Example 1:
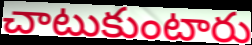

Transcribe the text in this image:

చాటుకుంటారు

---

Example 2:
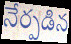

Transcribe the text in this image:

నేర్పడిన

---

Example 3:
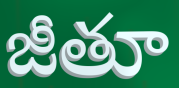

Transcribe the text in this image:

జీతూ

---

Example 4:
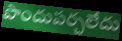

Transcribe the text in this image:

పొందుపర్చలేదు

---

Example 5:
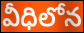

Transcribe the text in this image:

వీధిలోన